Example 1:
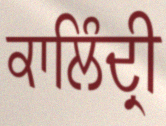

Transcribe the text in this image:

ਕਾਲਿੰਦ੍ਰੀ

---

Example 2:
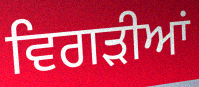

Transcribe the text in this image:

ਵਿਗੜੀਆਂ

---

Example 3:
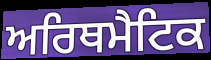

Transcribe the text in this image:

ਅਰਿਥਮੈਟਿਕ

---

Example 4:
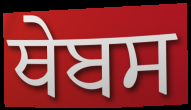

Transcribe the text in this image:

ਥੇਬਸ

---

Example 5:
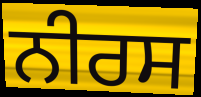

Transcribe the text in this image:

ਨੀਰਸ